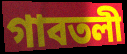
গাবতলী